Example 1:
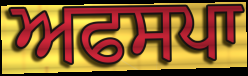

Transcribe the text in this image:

ਅਫਸਪਾ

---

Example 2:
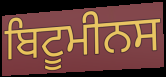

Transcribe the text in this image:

ਬਿਟੂਮੀਨਸ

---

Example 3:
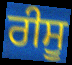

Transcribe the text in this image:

ਰੀਸੂ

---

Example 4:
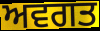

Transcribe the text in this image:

ਅਵਗਤ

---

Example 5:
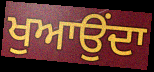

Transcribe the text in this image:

ਖੁਆਉਂਦਾ